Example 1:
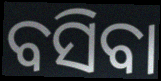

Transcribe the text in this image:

ବସିବା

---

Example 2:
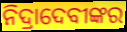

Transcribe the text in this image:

ନିଦ୍ରାଦେବୀଙ୍କର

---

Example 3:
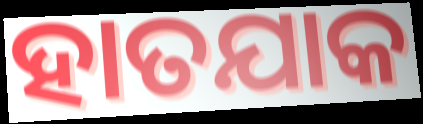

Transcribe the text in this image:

ହାତଯାକ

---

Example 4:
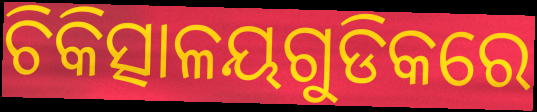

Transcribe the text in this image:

ଚିକିତ୍ସାଳୟଗୁଡିକରେ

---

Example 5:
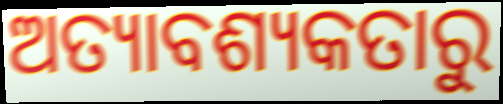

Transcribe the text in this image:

ଅତ୍ୟାବଶ୍ୟକତାରୁ